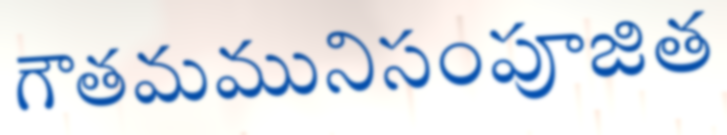
గౌతమమునిసంపూజిత